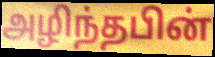
அழிந்தபின்